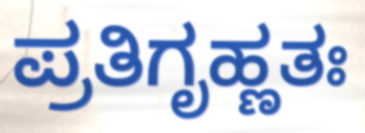
ಪ್ರತಿಗೃಹ್ಣತಃ